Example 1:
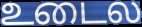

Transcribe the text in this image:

உடைல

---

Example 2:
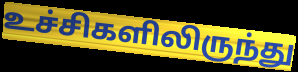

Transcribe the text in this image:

உச்சிகளிலிருந்து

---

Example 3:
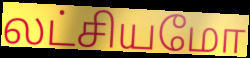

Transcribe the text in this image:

லட்சியமோ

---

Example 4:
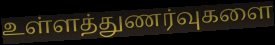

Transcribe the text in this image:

உள்ளத்துணர்வுகளை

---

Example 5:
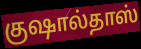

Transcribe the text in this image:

குஷால்தாஸ்